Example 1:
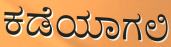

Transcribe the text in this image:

ಕಡೆಯಾಗಲಿ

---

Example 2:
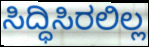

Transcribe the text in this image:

ಸಿದ್ಧಿಸಿರಲಿಲ್ಲ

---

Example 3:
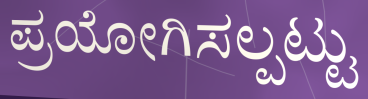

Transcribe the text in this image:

ಪ್ರಯೋಗಿಸಲ್ಪಟ್ಟು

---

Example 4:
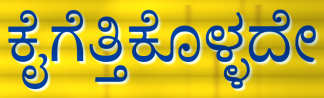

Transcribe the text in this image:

ಕೈಗೆತ್ತಿಕೊಳ್ಳದೇ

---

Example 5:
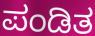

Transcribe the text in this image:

ಪಂಡಿತ